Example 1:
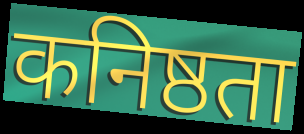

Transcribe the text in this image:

कनिष्ठता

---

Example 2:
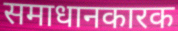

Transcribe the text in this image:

समाधानकारक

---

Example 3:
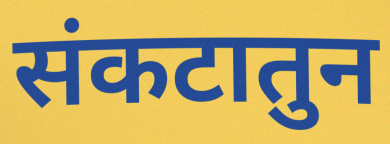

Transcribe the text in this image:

संकटातुन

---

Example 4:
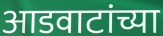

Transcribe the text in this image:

आडवाटांच्या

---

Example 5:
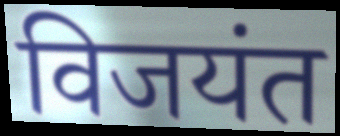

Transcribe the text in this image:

विजयंत